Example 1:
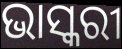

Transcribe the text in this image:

ଭାସ୍କରୀ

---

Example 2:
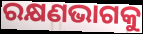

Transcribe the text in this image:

ରକ୍ଷଣଭାଗକୁ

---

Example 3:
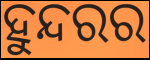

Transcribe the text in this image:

ହୁନ୍ଦରର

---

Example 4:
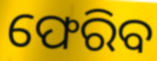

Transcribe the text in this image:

ଫେରିବ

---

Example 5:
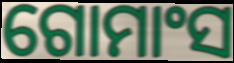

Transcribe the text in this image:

ଗୋମାଂସ